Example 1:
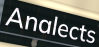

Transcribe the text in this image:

Analects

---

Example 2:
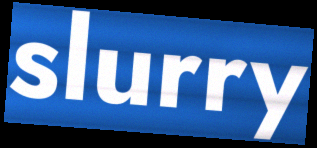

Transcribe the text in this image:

slurry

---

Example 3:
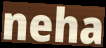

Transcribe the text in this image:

neha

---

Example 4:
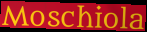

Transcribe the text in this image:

Moschiola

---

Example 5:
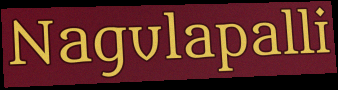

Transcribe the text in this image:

Nagulapalli